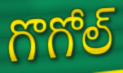
గొగోల్